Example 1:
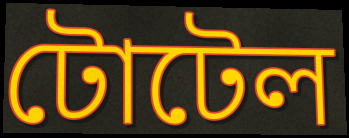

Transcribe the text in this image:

টোটেল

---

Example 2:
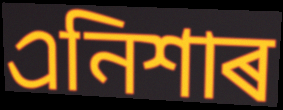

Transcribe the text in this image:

এনিশাৰ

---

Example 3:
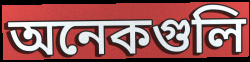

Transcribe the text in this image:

অনেকগুলি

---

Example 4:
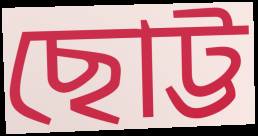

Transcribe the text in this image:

ছোট্ট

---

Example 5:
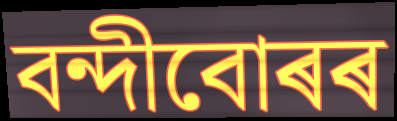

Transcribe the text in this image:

বন্দীবোৰৰ